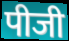
पीजी